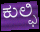
ಕುಲ್ಫಿ